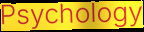
Psychology